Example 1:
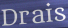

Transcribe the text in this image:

Drais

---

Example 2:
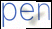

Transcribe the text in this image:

pen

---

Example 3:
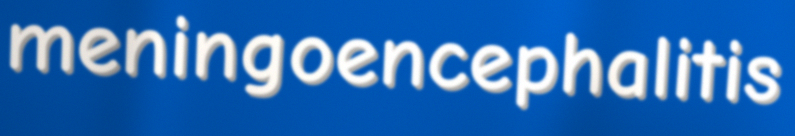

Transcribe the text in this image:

meningoencephalitis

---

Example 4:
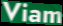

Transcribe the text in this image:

Viam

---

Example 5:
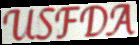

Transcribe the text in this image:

USFDA